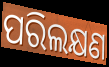
ପରିଲକ୍ଷଣ